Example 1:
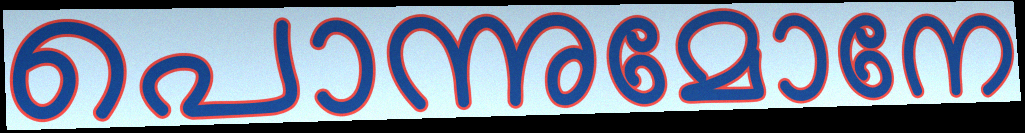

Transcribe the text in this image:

പൊന്നുമോനേ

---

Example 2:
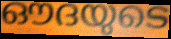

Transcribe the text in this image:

ഔദയുടെ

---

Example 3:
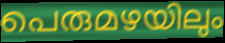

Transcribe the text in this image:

പെരുമഴയിലും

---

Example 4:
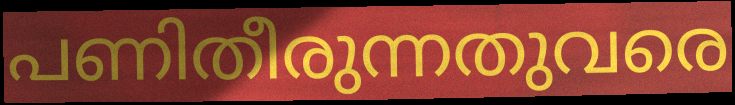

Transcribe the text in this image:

പണിതീരുന്നതുവരെ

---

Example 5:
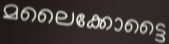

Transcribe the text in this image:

മലൈക്കോട്ടൈ